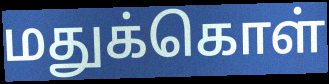
மதுக்கொள்